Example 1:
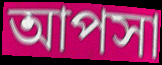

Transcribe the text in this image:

আপসা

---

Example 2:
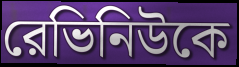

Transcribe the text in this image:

রেভিনিউকে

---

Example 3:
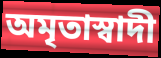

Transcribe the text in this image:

অমৃতাস্বাদী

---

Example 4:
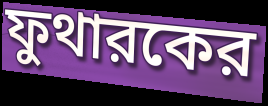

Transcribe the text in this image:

ফুথারকের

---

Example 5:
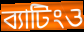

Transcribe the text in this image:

ব্যাটিংও